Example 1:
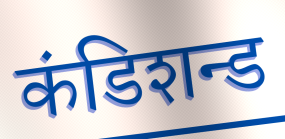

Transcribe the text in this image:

कंडिशन्ड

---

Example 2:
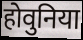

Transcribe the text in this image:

होवुनिया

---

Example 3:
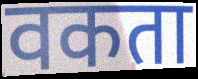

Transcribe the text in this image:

वकता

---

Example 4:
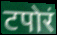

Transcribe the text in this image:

टपोरं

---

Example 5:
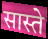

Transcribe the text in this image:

सास्ते